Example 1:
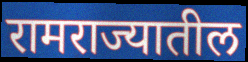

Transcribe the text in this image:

रामराज्यातील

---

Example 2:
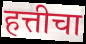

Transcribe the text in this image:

हत्तीचा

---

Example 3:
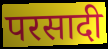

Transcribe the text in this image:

परसादी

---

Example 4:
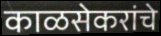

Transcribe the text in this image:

काळसेकरांचे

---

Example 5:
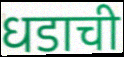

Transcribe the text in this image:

धडाची